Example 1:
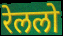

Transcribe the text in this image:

रेललो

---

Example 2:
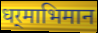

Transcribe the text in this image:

धर्माभिमान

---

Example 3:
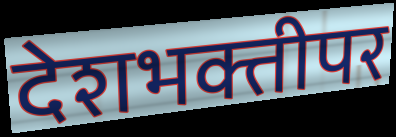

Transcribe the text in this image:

देशभक्तीपर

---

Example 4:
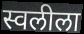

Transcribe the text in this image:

स्वलीला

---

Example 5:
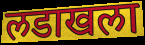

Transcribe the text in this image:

लडाखला